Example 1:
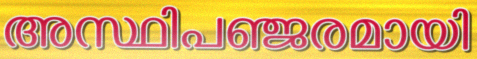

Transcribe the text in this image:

അസ്ഥിപഞ്ജരമായി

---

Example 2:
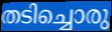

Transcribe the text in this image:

തടിച്ചൊരു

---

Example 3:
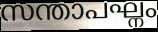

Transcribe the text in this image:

സന്താപഘ്നം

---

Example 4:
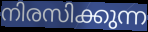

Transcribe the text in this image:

നിരസിക്കുന്ന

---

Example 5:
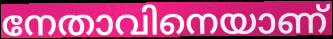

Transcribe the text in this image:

നേതാവിനെയാണ്